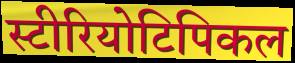
स्टीरियोटिपिकल